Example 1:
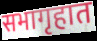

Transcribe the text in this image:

सभागृहात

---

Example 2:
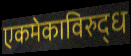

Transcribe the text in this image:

एकमेकाविरुद्ध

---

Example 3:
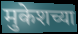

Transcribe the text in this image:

मुकेशच्या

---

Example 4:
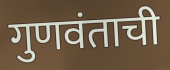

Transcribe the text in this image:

गुणवंताची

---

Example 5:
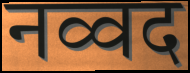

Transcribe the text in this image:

नव्वद